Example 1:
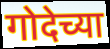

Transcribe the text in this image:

गोदेच्या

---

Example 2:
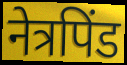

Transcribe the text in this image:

नेत्रपिंड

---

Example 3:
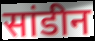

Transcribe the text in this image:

सांडीन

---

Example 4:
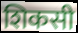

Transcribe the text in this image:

शिकसी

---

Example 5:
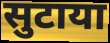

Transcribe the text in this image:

सुटाया